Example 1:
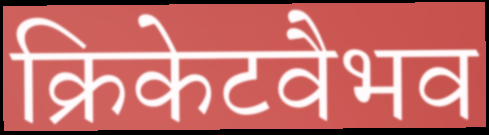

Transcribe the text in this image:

क्रिकेटवैभव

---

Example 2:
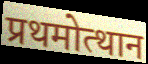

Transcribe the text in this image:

प्रथमोत्थान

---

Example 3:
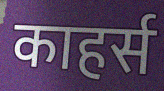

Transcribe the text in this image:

काहर्स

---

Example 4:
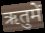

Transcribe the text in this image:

ऋतुमें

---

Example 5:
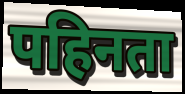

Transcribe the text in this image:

पहिनता